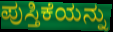
ಪುಸ್ತಿಕೆಯನ್ನು